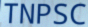
TNPSC